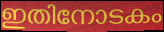
ഇതിനോടകം